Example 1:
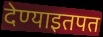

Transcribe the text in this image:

देण्याइतपत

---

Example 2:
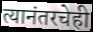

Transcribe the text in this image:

त्यानंतरचेही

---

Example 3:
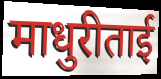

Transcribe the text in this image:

माधुरीताई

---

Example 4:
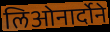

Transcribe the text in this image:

लिओनार्दोने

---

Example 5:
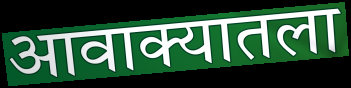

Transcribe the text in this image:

आवाक्यातला